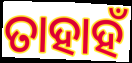
ତାହାହଁ